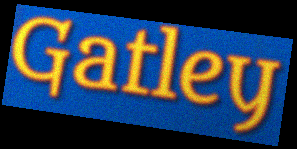
Gatley